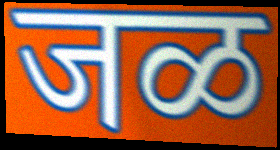
जळ